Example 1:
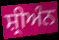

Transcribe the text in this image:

ਸ਼੍ਰੀਅੰਨ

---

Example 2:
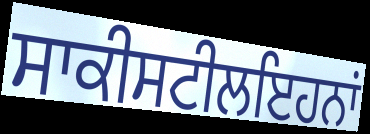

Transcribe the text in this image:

ਸਾਕੀਸਟੀਲਇਹਨਾਂ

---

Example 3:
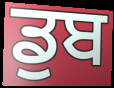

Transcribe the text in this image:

ਡੁਬ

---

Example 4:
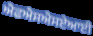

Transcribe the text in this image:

ਐਫਐਸਐਸਏਆਈ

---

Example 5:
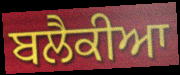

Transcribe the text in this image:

ਬਲੈਕੀਆ